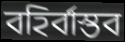
বহির্বাস্তব